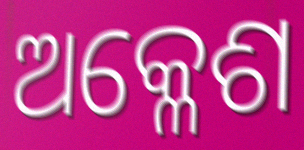
ଅକ୍ଳେଶ